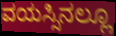
ವಯಸ್ಸಿನಲ್ಲೂ